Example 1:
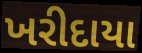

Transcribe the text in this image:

ખરીદાયા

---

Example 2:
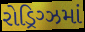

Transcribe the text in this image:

રોડ્રિગ્ઝમાં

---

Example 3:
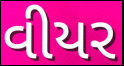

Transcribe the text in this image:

વીયર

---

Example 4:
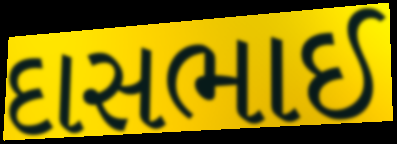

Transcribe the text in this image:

દાસભાઈ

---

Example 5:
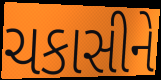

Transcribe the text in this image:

ચકાસીને